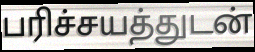
பரிச்சயத்துடன்